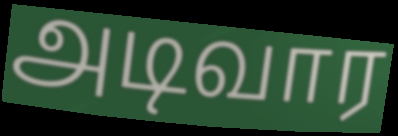
அடிவார